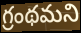
గ్రంథమని